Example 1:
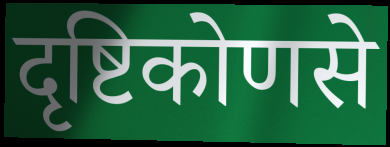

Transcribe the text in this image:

दृष्टिकोणसे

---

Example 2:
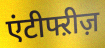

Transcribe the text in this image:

एंटीफ्ऱीज़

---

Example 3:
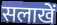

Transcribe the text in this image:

सलाखें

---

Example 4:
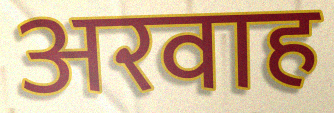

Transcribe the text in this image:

अरवाह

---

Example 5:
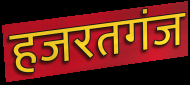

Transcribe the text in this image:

हजरतगंज